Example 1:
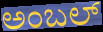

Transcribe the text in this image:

ಅಂಬಲ್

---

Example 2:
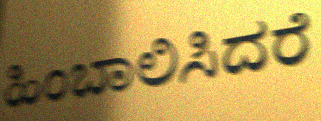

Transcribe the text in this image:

ಹಿಂಬಾಲಿಸಿದರೆ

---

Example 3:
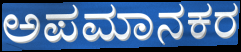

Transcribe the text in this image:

ಅಪಮಾನಕರ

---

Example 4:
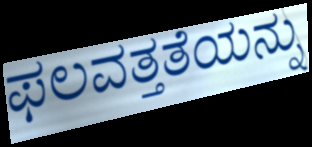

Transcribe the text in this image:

ಫಲವತ್ತತೆಯನ್ನು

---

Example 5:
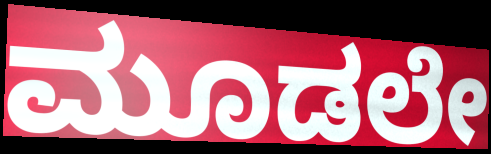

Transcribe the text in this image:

ಮೂಡಲೇ